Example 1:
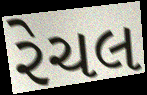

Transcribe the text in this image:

રેચલ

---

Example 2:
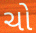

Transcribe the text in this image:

ચો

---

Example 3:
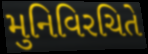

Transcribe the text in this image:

મુનિવિરચિતે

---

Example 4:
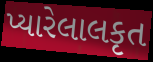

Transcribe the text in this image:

પ્યારેલાલકૃત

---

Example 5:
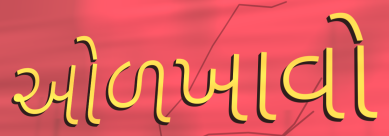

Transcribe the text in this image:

ઓળખાવો